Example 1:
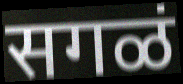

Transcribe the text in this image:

सगळं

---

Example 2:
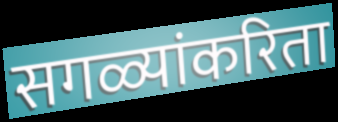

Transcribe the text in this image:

सगळ्यांकरिता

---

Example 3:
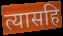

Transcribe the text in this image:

त्यासहि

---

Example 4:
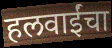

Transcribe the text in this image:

हलवाईंचा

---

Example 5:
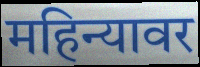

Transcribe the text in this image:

महिन्यावर